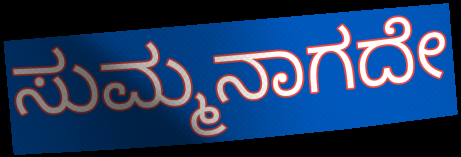
ಸುಮ್ಮನಾಗದೇ